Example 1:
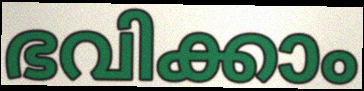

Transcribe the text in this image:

ഭവിക്കാം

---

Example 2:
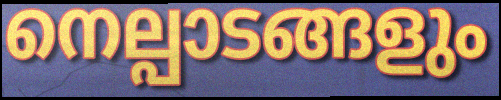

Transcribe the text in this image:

നെല്പാടങ്ങളും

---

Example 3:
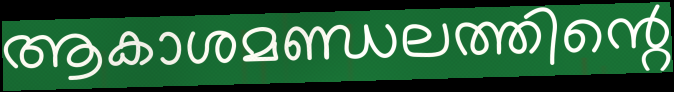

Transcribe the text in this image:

ആകാശമണ്ഡലത്തിന്റെ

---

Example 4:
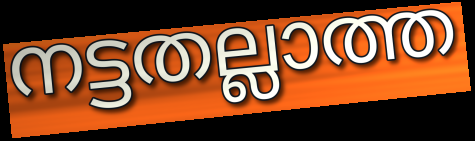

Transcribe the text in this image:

നട്ടതല്ലാത്ത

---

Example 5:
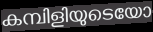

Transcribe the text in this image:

കമ്പിളിയുടെയോ